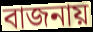
বাজনায়